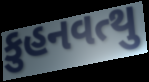
કુહનવત્થુ